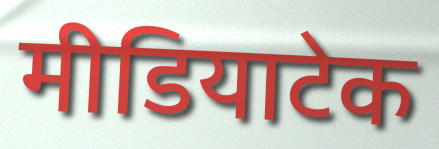
मीडियाटेक